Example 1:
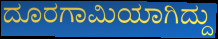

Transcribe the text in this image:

ದೂರಗಾಮಿಯಾಗಿದ್ದು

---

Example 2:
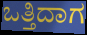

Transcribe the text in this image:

ಒತ್ತಿದಾಗ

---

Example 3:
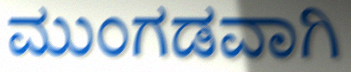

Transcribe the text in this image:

ಮುಂಗಡವಾಗಿ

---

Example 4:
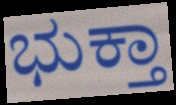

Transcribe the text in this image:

ಭುಕ್ತಾ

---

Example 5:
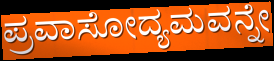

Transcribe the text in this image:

ಪ್ರವಾಸೋದ್ಯಮವನ್ನೇ